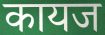
कायज